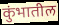
कुंभातील